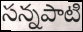
సన్నపాటి